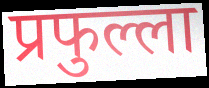
प्रफुल्ला